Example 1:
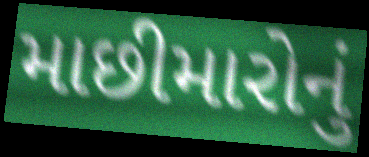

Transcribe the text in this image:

માછીમારોનું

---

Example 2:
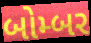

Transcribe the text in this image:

બોમ્બર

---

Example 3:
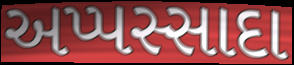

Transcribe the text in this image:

અપ્પસ્સાદા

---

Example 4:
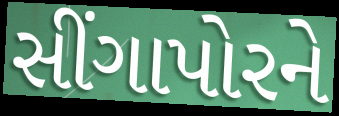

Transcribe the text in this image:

સીંગાપોરને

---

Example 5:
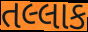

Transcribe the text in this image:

તલ્લાક